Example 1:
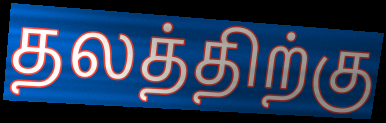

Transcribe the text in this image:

தலத்திற்கு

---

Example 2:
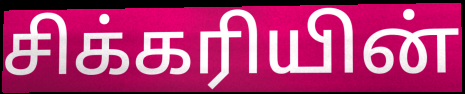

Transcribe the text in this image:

சிக்கரியின்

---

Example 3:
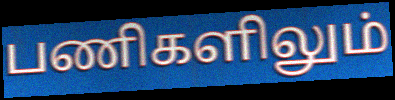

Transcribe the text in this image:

பணிகளிலும்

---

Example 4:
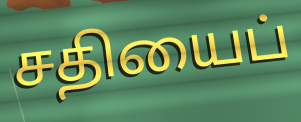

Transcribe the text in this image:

சதியைப்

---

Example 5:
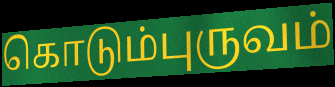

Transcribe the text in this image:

கொடும்புருவம்